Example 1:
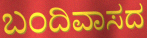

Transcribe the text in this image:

ಬಂದಿವಾಸದ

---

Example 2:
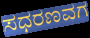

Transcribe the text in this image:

ಸಧರಣವಗ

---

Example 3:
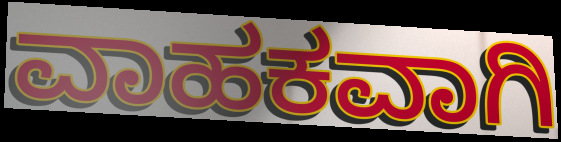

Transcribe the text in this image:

ವಾಹಕವಾಗಿ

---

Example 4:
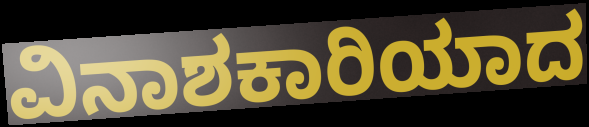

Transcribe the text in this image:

ವಿನಾಶಕಾರಿಯಾದ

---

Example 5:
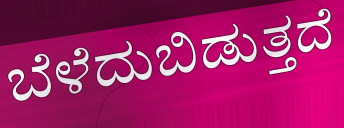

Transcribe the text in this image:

ಬೆಳೆದುಬಿಡುತ್ತದೆ